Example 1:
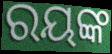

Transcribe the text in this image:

ରୟଙ୍କ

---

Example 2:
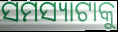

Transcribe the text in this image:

ସମସ୍ୟାଟାକୁ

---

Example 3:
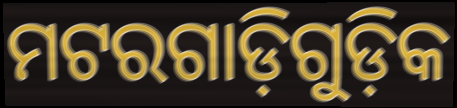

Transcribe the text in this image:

ମଟରଗାଡ଼ିଗୁଡ଼ିକ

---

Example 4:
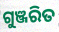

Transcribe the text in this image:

ଗୁଞ୍ଜରିତ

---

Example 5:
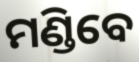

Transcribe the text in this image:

ମଣ୍ଡିବେ